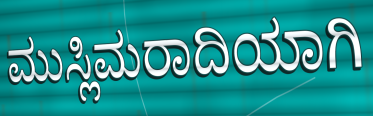
ಮುಸ್ಲಿಮರಾದಿಯಾಗಿ